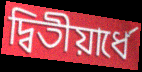
দ্বিতীয়ার্ধে